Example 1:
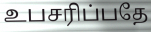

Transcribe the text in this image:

உபசரிப்பதே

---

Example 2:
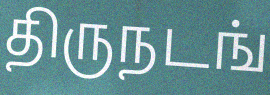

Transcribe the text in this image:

திருநடங்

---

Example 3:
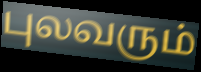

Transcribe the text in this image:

புலவரும்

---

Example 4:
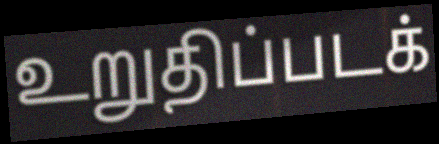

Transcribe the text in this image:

உறுதிப்படக்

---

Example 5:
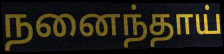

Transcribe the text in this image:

நனைந்தாய்